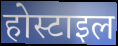
होस्टाइल